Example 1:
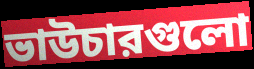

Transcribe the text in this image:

ভাউচারগুলো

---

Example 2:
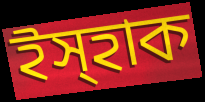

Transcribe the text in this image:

ইস্‌হাক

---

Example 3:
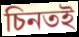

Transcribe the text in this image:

চিনতই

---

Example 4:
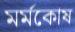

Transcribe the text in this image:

মর্মকোষ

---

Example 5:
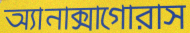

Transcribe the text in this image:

অ্যানাক্সাগোরাস